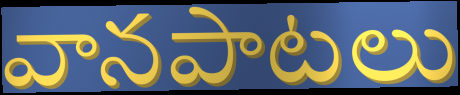
వానపాటలు